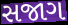
સજાગ